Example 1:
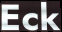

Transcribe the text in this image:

Eck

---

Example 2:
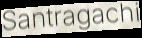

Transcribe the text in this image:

Santragachi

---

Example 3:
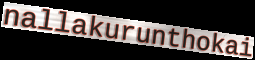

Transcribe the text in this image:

nallakurunthokai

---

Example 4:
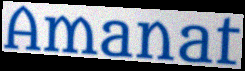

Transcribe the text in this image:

Amanat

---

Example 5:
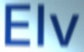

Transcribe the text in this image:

Elv